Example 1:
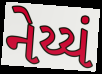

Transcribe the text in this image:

નેય્યં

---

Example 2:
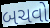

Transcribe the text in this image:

બચવો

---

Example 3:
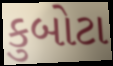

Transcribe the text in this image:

કુબોટા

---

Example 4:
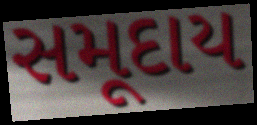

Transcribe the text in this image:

સમૂદાય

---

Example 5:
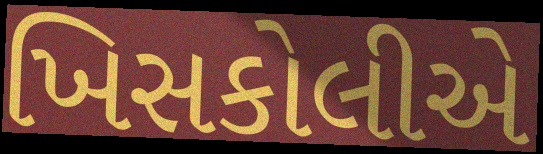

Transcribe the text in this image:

ખિસકોલીએ